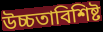
উচ্চতাবিশিষ্ট